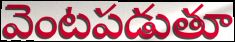
వెంటపడుతూ